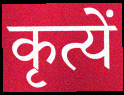
कृत्यें